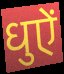
धुऐं